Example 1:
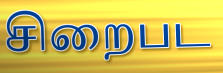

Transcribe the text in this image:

சிறைபட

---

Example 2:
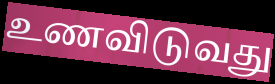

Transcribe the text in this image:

உணவிடுவது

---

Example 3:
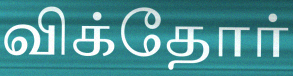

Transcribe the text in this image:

விக்தோர்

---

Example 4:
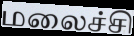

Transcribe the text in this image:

மலைச்சி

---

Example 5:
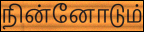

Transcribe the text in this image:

நின்னோடும்